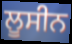
ਲੂਸੀਨ